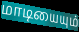
மாடியையும்